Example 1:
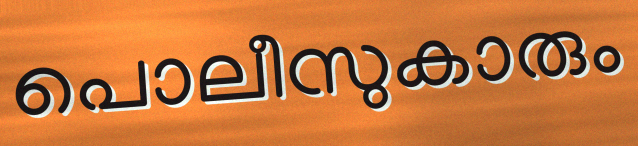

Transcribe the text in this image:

പൊലീസുകാരും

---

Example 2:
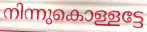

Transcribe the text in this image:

നിന്നുകൊള്ളട്ടേ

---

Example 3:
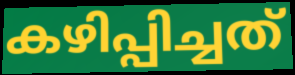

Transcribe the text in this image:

കഴിപ്പിച്ചത്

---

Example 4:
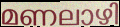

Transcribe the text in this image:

മണലാഴി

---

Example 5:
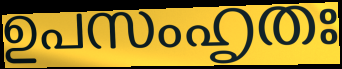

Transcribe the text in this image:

ഉപസംഹൃതഃ